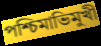
পশ্চিমাভিমুখী